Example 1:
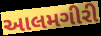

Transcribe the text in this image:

આલમગીરી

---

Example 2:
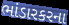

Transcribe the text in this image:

ભાંડારકરના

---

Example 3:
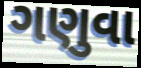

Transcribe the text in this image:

ગણુવા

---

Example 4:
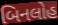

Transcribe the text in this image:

બિનલોહ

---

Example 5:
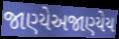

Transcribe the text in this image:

જાણ્યેઅજાણ્યેય